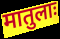
मातुलाः